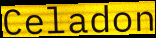
Celadon